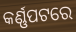
କର୍ଣ୍ଣପଟରେ